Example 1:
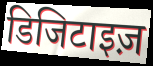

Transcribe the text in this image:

डिजिटाइज़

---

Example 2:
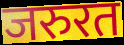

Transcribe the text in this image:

जरुरत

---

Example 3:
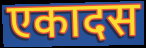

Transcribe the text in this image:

एकादस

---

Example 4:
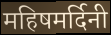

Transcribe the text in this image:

महिषमर्दिनी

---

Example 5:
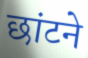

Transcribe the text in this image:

छांटने